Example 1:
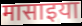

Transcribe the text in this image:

मासाइया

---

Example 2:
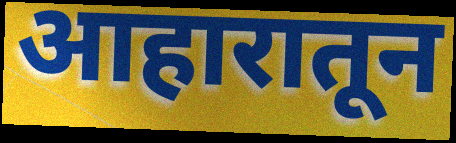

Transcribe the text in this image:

आहारातून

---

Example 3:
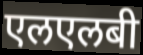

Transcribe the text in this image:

एलएलबी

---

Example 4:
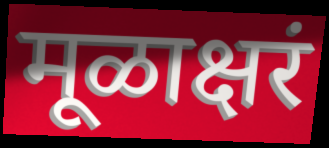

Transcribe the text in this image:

मूळाक्षरं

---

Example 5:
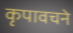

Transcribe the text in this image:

कृपावचने